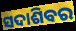
ସଦାଶିବର